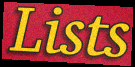
Lists